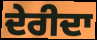
ਦੇਰੀਦਾ